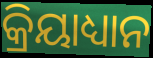
କ୍ରିୟାଧ୍ୟାନ